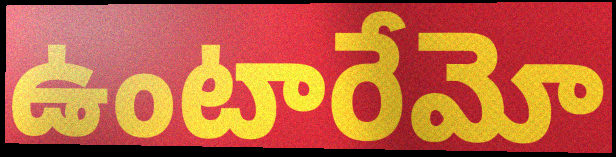
ఉంటారేమో